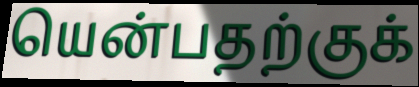
யென்பதற்குக்